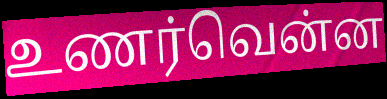
உணர்வென்ன